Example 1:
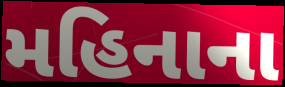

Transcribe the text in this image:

મહિનાના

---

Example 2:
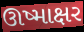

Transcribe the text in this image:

ઊષ્માક્ષર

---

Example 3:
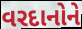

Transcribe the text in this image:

વરદાનોને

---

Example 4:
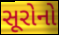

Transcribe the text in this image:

સૂરોનો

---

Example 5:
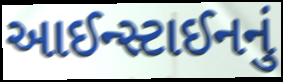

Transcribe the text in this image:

આઈન્સ્ટાઈનનું